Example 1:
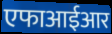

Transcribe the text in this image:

एफाआईआर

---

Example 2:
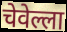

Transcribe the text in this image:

चेवेल्ला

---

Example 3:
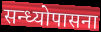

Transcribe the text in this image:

सन्ध्योपासना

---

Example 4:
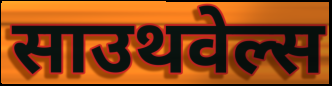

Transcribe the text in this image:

साउथवेल्स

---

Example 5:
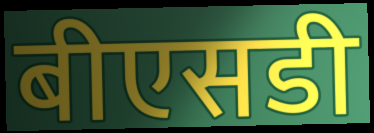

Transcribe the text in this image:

बीएसडी